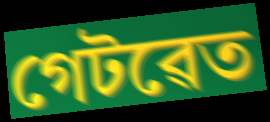
গেটৱেত